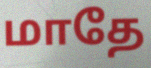
மாதே